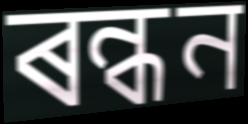
ৰন্ধন